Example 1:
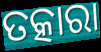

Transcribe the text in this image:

ତତ୍କାରା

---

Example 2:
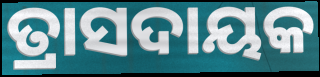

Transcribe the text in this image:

ତ୍ରାସଦାୟକ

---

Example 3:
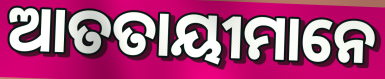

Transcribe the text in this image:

ଆତତାୟୀମାନେ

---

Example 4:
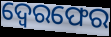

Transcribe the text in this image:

ଦ୍ବେରଫେର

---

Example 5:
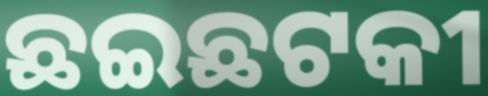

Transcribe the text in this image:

ଛଇଛଟକୀ